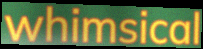
whimsical